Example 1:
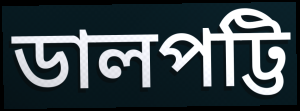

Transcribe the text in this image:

ডালপট্টি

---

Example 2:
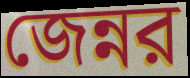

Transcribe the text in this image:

জেন্নর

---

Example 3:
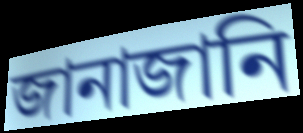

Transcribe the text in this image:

জানাজানি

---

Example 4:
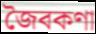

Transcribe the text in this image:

জৈবকণা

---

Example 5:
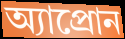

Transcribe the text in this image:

অ্যাপ্রোন